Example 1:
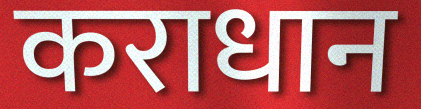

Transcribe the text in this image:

कराधान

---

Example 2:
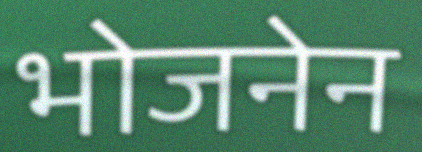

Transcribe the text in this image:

भोजनेन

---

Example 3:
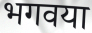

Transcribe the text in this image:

भगवया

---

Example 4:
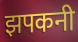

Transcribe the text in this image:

झपकनी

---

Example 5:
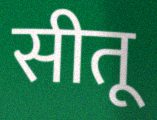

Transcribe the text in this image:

सीतू